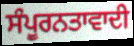
ਸੰਪੂਰਨਤਾਵਾਦੀ